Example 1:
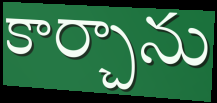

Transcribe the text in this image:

కార్చాను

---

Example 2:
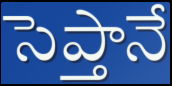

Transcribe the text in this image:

సెప్తానే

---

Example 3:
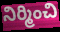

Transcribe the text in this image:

నిర్మించి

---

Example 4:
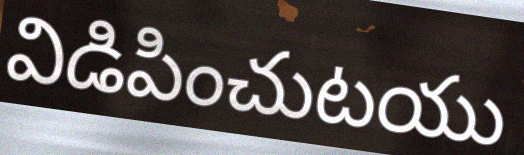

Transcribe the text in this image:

విడిపించుటయు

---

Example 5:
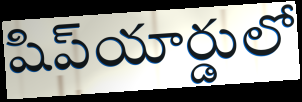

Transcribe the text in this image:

షిప్‌యార్డులో